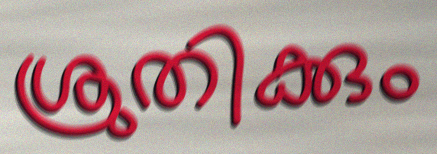
ശ്രുതിക്കും